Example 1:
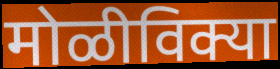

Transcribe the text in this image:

मोळीविक्या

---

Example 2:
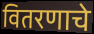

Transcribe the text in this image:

वितरणाचे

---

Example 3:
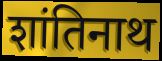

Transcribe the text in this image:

शांतिनाथ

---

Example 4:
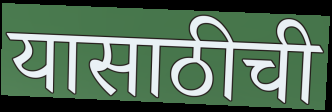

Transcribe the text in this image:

यासाठीची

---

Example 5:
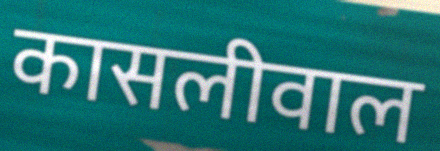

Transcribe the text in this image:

कासलीवाल